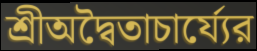
শ্রীঅদ্বৈতাচার্য্যের